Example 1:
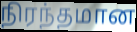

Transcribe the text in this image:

நிரந்தமான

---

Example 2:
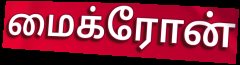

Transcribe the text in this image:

மைக்ரோன்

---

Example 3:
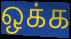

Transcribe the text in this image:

ஒக்க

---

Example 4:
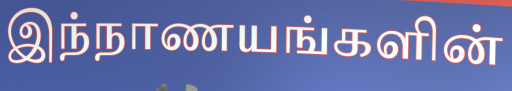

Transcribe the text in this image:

இந்நாணயங்களின்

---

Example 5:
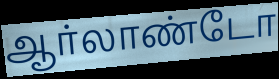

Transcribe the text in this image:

ஆர்லாண்டோ